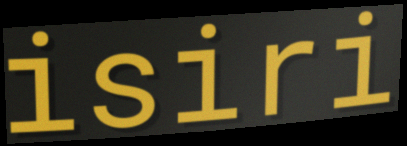
isiri